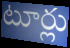
టూర్లు